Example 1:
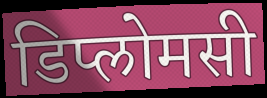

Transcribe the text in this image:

डिप्लोमसी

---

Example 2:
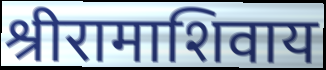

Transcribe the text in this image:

श्रीरामाशिवाय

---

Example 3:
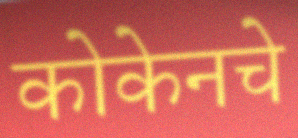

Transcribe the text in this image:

कोकेनचे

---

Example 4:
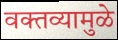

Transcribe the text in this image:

वक्तव्यामुळे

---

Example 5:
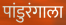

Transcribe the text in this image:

पांडुरंगाला